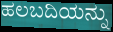
ಹಲಬದಿಯನ್ನು